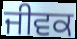
ਜੀਵਕ